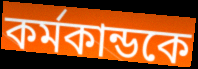
কর্মকান্ডকে